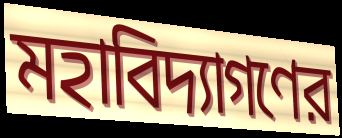
মহাবিদ্যাগণের